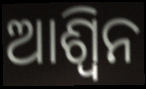
ଆଶ୍ୱିନ